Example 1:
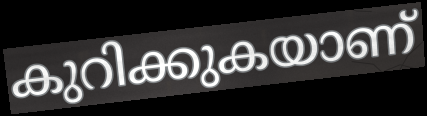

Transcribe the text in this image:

കുറിക്കുകയാണ്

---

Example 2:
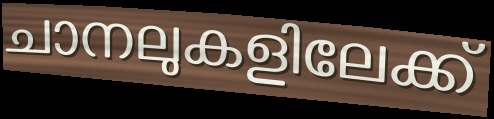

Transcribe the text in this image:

ചാനലുകളിലേക്ക്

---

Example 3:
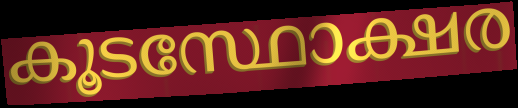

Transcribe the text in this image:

കൂടസ്ഥോക്ഷര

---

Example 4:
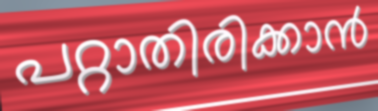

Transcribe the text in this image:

പറ്റാതിരിക്കാൻ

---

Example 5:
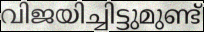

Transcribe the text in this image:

വിജയിച്ചിട്ടുമുണ്ട്